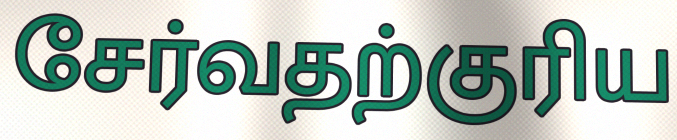
சேர்வதற்குரிய